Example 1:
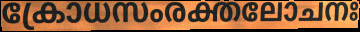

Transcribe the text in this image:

ക്രോധസംരക്തലോചനഃ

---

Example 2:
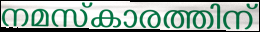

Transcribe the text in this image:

നമസ്‌കാരത്തിന്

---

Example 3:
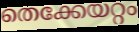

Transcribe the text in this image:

തെക്കേയറ്റം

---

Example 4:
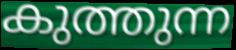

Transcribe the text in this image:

കുത്തുന്ന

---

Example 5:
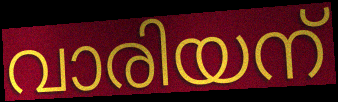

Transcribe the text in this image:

വാരിയന്